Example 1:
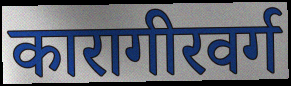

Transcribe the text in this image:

कारागीरवर्ग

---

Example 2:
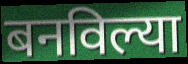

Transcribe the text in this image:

बनविल्या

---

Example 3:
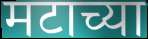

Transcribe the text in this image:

मटाच्या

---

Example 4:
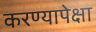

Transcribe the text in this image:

करण्यापेक्षा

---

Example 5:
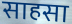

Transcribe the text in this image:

साहसा